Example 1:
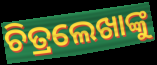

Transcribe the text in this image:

ଚିତ୍ରଲେଖାଙ୍କୁ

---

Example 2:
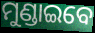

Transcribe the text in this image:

ମୁଣ୍ଡାଇବେ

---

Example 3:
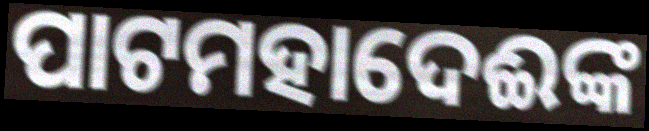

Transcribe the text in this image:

ପାଟମହାଦେଈଙ୍କ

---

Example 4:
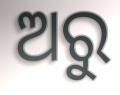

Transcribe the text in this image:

ଅରୁ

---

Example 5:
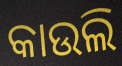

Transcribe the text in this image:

କାଉଲି